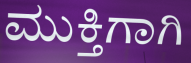
ಮುಕ್ತಿಗಾಗಿ